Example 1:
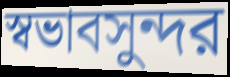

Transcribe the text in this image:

স্বভাবসুন্দর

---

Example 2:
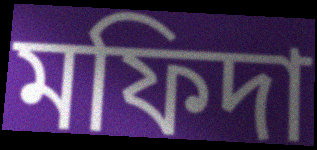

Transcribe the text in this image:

মফিদা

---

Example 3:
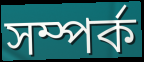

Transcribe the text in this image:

সম্পর্ক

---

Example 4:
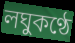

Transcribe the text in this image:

লঘুকণ্ঠে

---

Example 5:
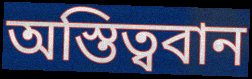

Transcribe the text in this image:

অস্তিত্ববান